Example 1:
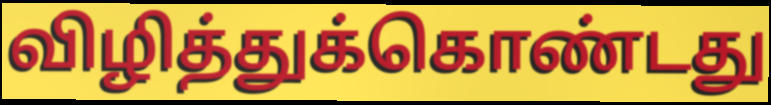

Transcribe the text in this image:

விழித்துக்கொண்டது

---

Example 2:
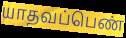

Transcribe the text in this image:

யாதவப்பெண்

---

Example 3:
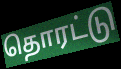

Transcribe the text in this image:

தொரட்டு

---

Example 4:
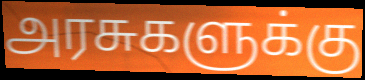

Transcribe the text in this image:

அரசுகளுக்கு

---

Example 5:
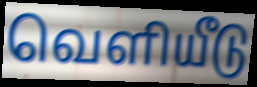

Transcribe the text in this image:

வெளியீடு